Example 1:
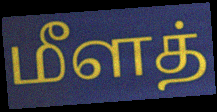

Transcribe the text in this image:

மீளத்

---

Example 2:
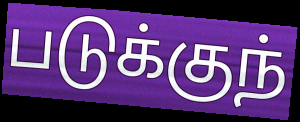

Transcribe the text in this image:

படுக்குந்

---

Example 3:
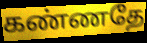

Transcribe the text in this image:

கண்ணதே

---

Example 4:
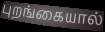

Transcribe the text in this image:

புறங்கையால்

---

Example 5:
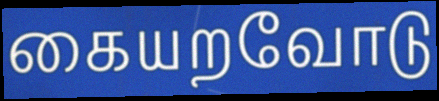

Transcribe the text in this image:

கையறவோடு